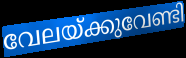
വേലയ്ക്കുവേണ്ടി